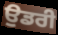
ਉਡਰੀ